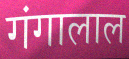
गंगालाल